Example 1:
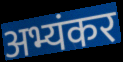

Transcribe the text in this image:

अभ्यंकर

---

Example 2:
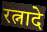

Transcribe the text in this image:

रत्नादे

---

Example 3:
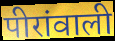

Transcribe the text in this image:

पीरांवाली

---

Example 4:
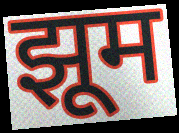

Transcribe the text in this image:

झूम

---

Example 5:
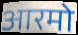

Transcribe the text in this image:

आरमो